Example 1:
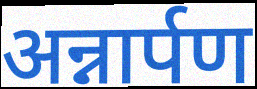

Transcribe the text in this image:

अन्नार्पण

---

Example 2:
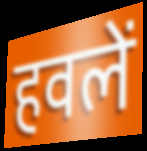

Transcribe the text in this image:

हवलें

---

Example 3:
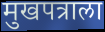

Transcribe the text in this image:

मुखपत्राला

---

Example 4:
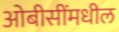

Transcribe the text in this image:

ओबीसींमधील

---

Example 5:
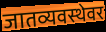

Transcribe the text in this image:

जातव्यवस्थेवर